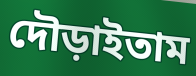
দৌড়াইতাম